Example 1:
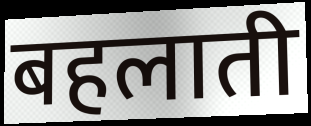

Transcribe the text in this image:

बहलाती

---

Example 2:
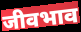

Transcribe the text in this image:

जीवभाव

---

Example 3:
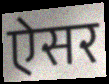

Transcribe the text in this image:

ऐसर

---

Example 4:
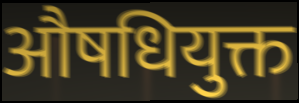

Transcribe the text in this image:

औषधियुक्त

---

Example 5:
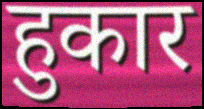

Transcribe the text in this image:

हुकार